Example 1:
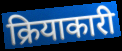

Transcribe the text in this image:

क्रियाकारी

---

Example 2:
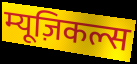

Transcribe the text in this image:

म्यूज़िकल्स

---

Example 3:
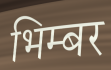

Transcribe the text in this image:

भिम्बर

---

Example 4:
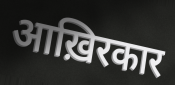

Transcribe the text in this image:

आख़िरकार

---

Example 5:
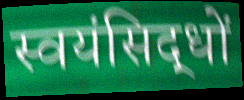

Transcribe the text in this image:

स्वयंसिद्धों